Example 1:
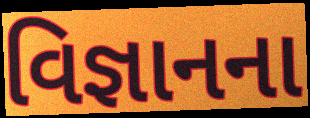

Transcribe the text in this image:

વિજ્ઞાનના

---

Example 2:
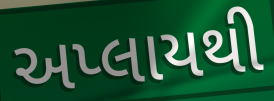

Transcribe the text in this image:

અપ્લાયથી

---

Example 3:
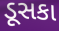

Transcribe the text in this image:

ડૂસકા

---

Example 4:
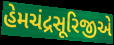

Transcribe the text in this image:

હેમચંદ્રસૂરિજીએ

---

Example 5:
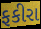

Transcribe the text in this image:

ફકીરા